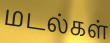
மடல்கள்